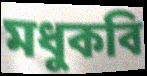
মধুকবি